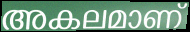
അകലമാണ്